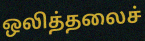
ஒலித்தலைச்